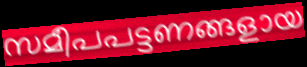
സമീപപട്ടണങ്ങളായ